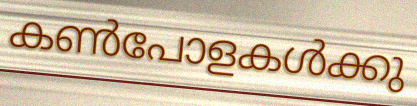
കൺപോളകൾക്കു